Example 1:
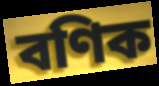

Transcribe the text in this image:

বণিক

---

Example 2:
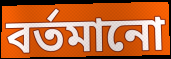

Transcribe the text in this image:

বৰ্তমানো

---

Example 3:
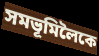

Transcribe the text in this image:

সমভূমিলৈকে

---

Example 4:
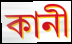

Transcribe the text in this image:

কানী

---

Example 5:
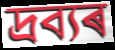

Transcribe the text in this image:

দ্ৰব্যৰ